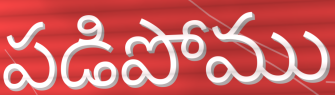
పడిపోము